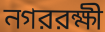
নগররক্ষী